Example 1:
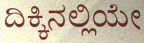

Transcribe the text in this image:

ದಿಕ್ಕಿನಲ್ಲಿಯೇ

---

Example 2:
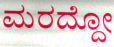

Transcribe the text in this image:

ಮರದ್ದೋ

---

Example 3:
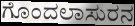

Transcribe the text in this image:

ಗೊಂದಲಾಸುರನ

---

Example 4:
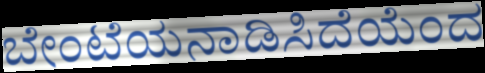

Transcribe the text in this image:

ಬೇಂಟೆಯನಾಡಿಸಿದೆಯೆಂದ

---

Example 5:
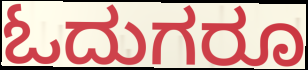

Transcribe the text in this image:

ಓದುಗರೂ